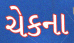
ચેકના